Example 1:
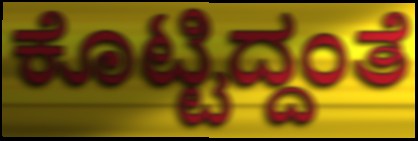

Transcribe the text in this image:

ಕೊಟ್ಟಿದ್ದಂತೆ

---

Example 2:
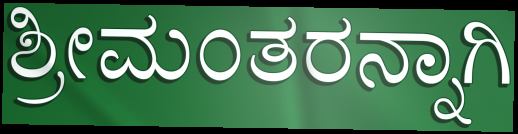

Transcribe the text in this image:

ಶ್ರೀಮಂತರನ್ನಾಗಿ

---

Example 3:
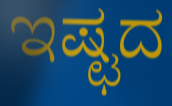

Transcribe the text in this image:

ಇಷ್ಟದ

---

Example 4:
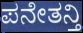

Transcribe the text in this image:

ಪನೇತನ್ತಿ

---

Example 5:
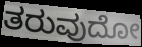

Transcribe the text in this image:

ತರುವುದೋ